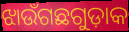
ଝାଉଁଗଛଗୁଡ଼ାକ